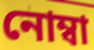
নোম্বা